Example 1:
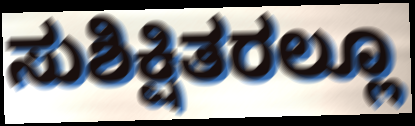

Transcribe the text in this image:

ಸುಶಿಕ್ಷಿತರಲ್ಲೂ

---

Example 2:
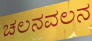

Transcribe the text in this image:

ಚಲನವಲನ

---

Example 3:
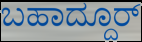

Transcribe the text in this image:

ಬಹಾದ್ದೂರ್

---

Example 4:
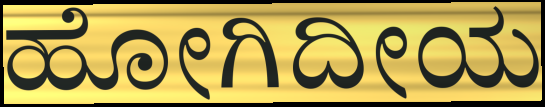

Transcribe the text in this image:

ಹೋಗಿದೀಯ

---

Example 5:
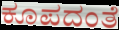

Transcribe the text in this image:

ಕೂಪದಂತೆ